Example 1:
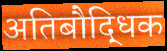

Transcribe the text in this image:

अतिबौद्धिक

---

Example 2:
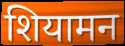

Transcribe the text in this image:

शियामन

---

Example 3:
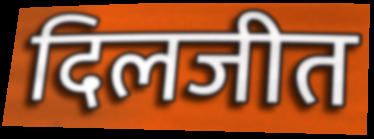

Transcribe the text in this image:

दिलजीत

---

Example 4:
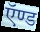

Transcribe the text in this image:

ऍण्ड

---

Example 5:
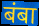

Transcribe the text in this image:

बंबा